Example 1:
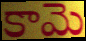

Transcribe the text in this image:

కామె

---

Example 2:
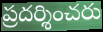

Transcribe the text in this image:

ప్రదర్శించరు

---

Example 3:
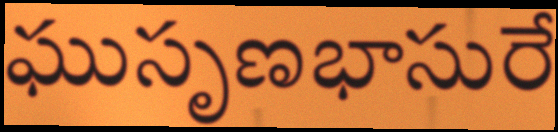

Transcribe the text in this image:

ఘుసృణభాసురే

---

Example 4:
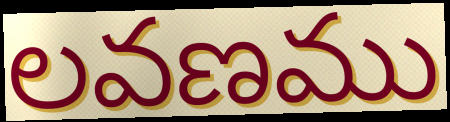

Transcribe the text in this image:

లవణము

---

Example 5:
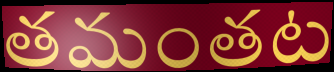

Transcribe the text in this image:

తమంతట